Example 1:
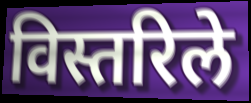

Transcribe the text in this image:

विस्तरिले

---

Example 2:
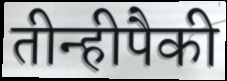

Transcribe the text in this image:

तीन्हीपैकी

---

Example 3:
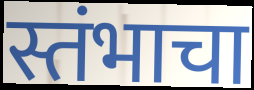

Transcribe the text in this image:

स्तंभाचा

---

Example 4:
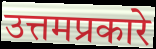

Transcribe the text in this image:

उत्तमप्रकारे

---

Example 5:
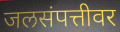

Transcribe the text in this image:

जलसंपत्तीवर